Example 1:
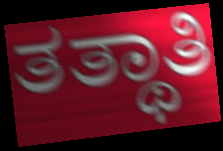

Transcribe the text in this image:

ತತ್ಥಾತಿ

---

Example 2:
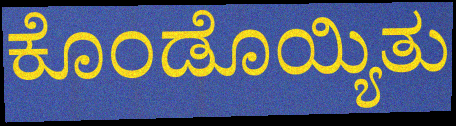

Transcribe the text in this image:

ಕೊಂಡೊಯ್ಯಿತು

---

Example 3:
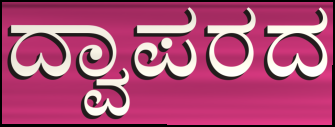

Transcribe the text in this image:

ದ್ವಾಪರದ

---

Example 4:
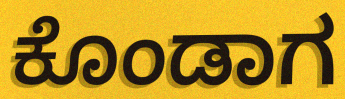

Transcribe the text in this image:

ಕೊಂಡಾಗ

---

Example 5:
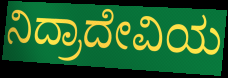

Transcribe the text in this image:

ನಿದ್ರಾದೇವಿಯ